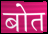
बोत